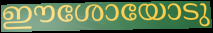
ഈശോയോടു